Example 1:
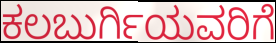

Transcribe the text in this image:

ಕಲಬುರ್ಗಿಯವರಿಗೆ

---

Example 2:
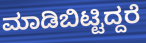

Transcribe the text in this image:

ಮಾಡಿಬಿಟ್ಟಿದ್ದರೆ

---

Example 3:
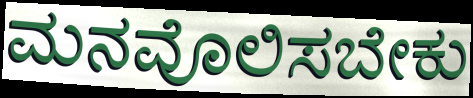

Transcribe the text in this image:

ಮನವೊಲಿಸಬೇಕು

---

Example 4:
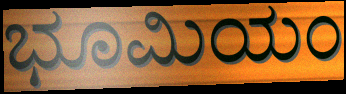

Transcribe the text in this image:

ಭೂಮಿಯಂ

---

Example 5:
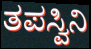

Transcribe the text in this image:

ತಪಸ್ವಿನಿ